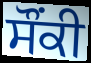
ਸੌਂਕੀ